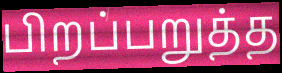
பிறப்பறுத்த